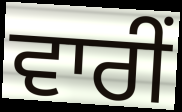
ਵਾਰੀਂ